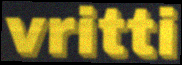
vritti